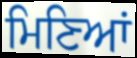
ਮਿਣਿਆਂ